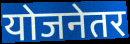
योजनेतर